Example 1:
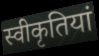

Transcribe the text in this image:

स्वीकृतियां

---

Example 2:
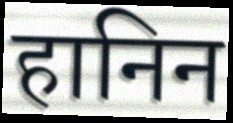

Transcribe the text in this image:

हानिन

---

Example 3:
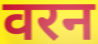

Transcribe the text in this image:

वरन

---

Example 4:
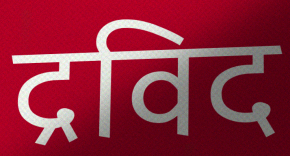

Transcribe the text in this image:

द्रविद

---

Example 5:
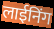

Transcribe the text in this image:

लाईनिंग